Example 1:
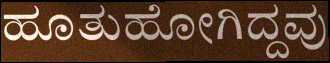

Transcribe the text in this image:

ಹೂತುಹೋಗಿದ್ದವು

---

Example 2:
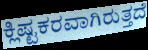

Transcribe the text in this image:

ಕ್ಲಿಷ್ಟಕರವಾಗಿರುತ್ತದೆ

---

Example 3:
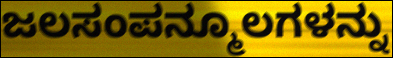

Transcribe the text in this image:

ಜಲಸಂಪನ್ಮೂಲಗಳನ್ನು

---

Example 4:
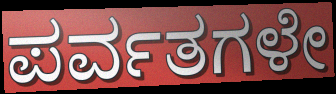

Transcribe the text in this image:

ಪರ್ವತಗಳೇ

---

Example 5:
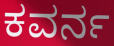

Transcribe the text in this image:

ಕವರ್ನ